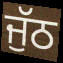
ਜੁੱਠ